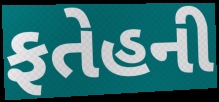
ફતેહની